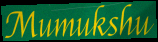
Mumukshu